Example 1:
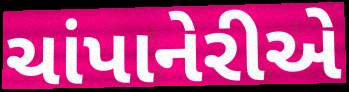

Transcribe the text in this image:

ચાંપાનેરીએ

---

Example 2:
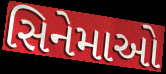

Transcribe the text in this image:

સિનેમાઓ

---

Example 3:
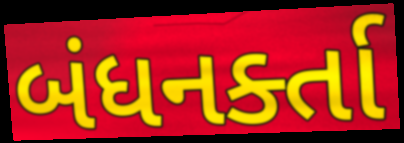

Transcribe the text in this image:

બંધનર્ક્તા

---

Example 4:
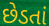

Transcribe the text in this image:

છેડતાં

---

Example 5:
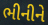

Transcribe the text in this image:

ભીનીને